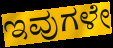
ಇವುಗಳೇ